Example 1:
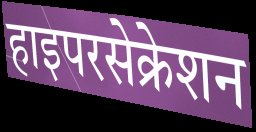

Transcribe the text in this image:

हाइपरसेक्रेशन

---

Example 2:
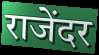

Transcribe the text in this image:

राजेंदर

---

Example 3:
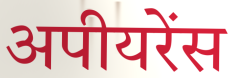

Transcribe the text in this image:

अपीयरेंस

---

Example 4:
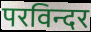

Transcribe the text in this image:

परविन्दर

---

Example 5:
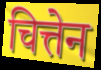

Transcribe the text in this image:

चित्तेन